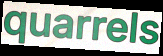
quarrels